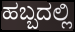
ಹಬ್ಬದಲ್ಲಿ